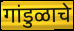
गांडुळाचे